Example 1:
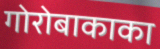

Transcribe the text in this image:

गोरोबाकाका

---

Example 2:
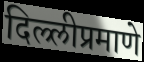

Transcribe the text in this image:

दिल्लीप्रमाणे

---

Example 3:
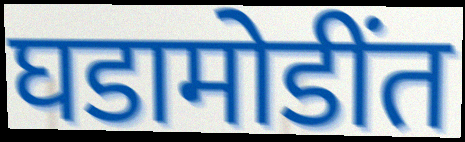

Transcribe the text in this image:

घडामोडींत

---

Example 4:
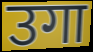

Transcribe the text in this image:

उगा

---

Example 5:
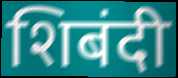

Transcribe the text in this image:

शिबंदी